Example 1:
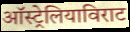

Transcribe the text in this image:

ऑस्ट्रेलियाविराट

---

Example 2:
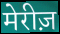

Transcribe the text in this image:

मेरीज़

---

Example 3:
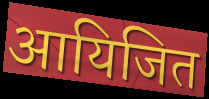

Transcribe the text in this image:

आयिजित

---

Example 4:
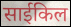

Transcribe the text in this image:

साईकिल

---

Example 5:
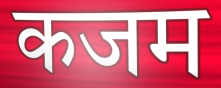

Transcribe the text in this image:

कजम